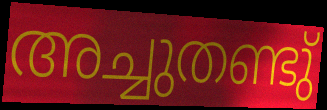
അച്ചുതണ്ടു്